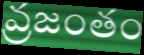
వ్రజంతం